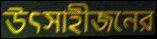
উৎসাহীজনের